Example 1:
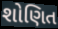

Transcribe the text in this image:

શોણિત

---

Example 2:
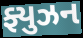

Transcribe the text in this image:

ફ્યુઝન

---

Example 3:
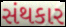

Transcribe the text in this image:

સંથકાર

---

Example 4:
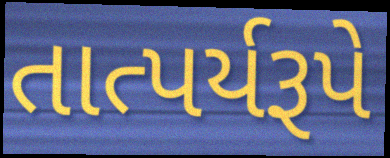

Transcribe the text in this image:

તાત્પર્યરૂપે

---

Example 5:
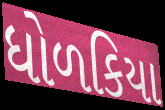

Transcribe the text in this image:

ધોળકિયા